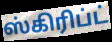
ஸ்கிரிப்ட்